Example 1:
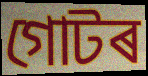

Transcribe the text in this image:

গোটৰ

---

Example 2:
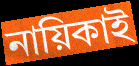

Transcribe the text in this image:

নায়িকাই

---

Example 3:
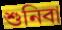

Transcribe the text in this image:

শুনিবা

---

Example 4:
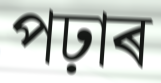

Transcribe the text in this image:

পঢ়াৰ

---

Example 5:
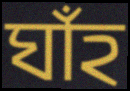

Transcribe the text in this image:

ঘাঁহ